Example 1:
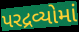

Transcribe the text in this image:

પરદ્રવ્યોમાં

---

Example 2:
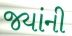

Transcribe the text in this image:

જ્યાંની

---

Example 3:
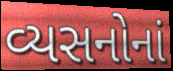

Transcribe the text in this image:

વ્યસનોનાં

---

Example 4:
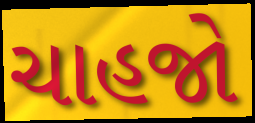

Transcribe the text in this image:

ચાહજો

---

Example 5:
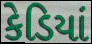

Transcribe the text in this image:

કેડિયાં